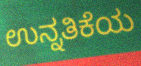
ಉನ್ನತಿಕೆಯ